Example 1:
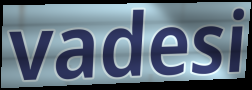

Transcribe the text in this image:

vadesi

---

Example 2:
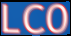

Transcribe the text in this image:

LCO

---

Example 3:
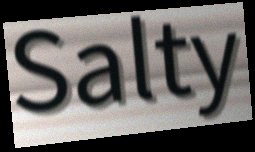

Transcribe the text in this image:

Salty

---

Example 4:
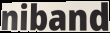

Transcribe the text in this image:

niband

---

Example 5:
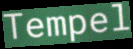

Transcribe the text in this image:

Tempel